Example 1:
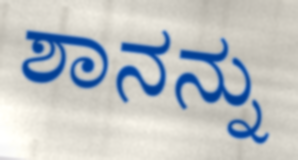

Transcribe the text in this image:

ಶಾನನ್ನು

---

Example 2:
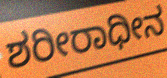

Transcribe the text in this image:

ಶರೀರಾಧೀನ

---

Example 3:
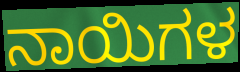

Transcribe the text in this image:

ನಾಯಿಗಳ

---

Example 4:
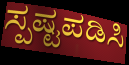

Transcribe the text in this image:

ಸ್ಪಷ್ಟಪಡಿಸಿ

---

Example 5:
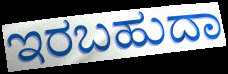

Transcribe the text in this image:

ಇರಬಹುದಾ